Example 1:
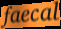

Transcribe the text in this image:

faecal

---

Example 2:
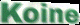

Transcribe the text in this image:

Koine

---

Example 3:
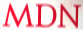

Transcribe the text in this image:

MDN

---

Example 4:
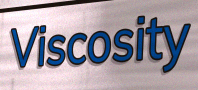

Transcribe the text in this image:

Viscosity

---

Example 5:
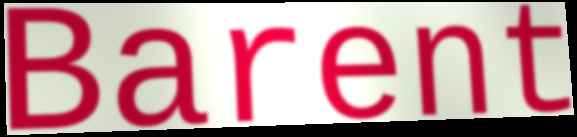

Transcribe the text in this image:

Barent